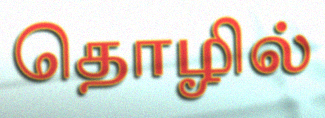
தொழில்